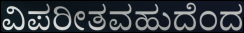
ವಿಪರೀತವಹುದೆಂದ